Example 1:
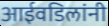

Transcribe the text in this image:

आईवडिलांनी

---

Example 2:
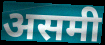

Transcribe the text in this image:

असमी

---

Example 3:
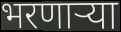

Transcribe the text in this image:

भरणाऱ्या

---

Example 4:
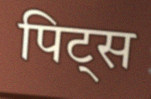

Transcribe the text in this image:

पिट्स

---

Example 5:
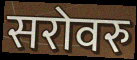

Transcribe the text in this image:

सरोवरु